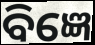
ବିଜ୍ଞେ